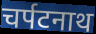
चर्पटनाथ